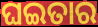
ଘଇତାର